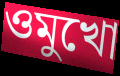
ওমুখো